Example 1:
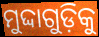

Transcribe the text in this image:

ମୁଦ୍ଦାଗୁଡ଼ିକୁ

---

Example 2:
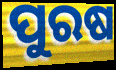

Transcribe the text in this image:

ପୁରଷ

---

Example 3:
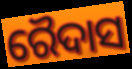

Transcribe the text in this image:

ରୈଦାସ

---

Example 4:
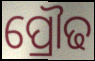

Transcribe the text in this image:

ପ୍ରୌଢ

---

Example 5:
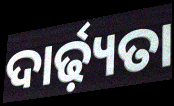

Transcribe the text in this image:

ଦାର୍ଢ଼୍ୟତା